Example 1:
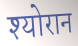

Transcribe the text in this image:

श्योरान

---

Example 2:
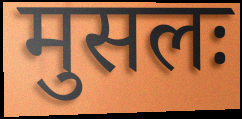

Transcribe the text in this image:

मुसलः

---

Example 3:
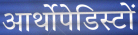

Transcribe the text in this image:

आर्थोपेडिस्टों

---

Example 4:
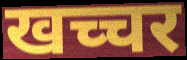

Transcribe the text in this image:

खच्चर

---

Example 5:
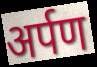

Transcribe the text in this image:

अर्पण